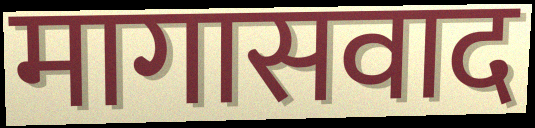
मागासवाद